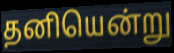
தனியென்று